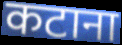
कटाना